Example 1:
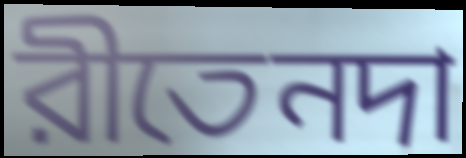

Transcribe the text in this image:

রীতেনদা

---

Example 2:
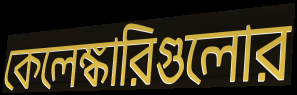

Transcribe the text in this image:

কেলেঙ্কারিগুলোর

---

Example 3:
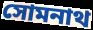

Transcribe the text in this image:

সোমনাথ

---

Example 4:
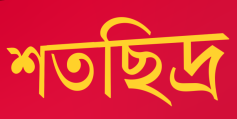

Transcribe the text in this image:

শতছিদ্র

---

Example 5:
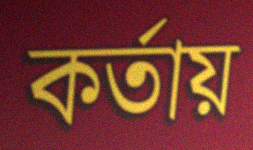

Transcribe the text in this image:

কর্তায়